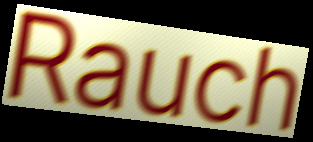
Rauch